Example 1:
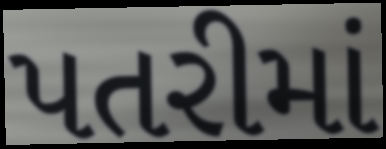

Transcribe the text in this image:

પતરીમાં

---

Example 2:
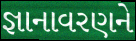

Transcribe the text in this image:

જ્ઞાનાવરણને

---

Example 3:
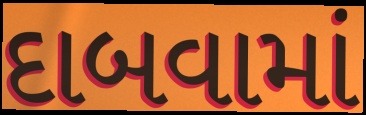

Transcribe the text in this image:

દાબવામાં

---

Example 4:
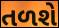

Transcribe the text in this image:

તળશે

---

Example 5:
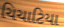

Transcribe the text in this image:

ચિચાટિયા